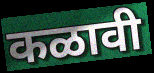
कळावी